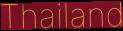
Thailand